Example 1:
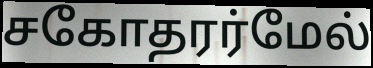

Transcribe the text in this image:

சகோதரர்மேல்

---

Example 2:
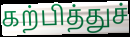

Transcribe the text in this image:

கற்பித்துச்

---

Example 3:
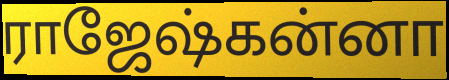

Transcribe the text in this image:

ராஜேஷ்கன்னா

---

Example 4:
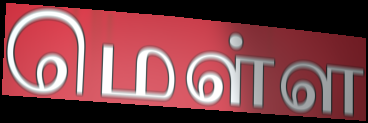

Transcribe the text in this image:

மெள்ள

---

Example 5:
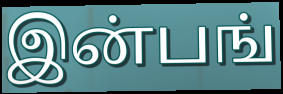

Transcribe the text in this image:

இன்பங்